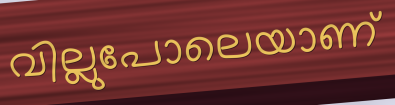
വില്ലുപോലെയാണ്